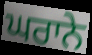
ਘਰਾਨੇ